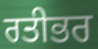
ਰਤੀਭਰ